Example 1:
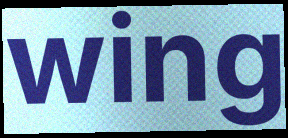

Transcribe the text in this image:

wing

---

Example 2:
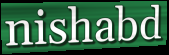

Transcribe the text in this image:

nishabd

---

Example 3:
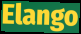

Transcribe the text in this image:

Elango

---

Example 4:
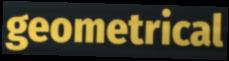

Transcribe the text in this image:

geometrical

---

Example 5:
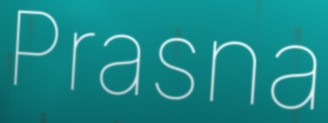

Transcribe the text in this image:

Prasna